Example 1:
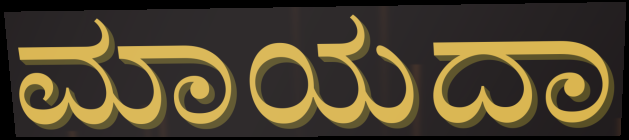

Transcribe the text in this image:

ಮಾಯದಾ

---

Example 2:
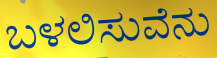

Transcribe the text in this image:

ಬಳಲಿಸುವೆನು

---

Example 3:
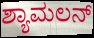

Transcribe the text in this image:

ಶ್ಯಾಮಲನ್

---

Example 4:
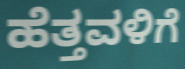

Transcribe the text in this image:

ಹೆತ್ತವಳಿಗೆ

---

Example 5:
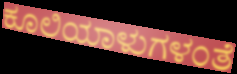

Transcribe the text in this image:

ಕೂಲಿಯಾಳುಗಳಂತೆ